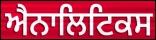
ਐਨਾਲਿਟਿਕਸ